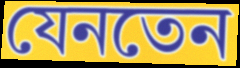
যেনতেন